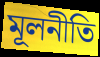
মূলনীতি